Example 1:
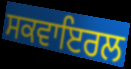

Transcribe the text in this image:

ਸਕਵਾਇਰਲ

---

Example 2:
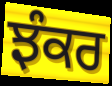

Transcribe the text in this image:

ਝੰਕਰ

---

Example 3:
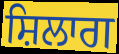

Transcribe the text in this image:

ਸ਼ਿਲਾਗ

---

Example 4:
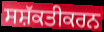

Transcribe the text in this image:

ਸਸ਼ੱਕਤੀਕਰਨ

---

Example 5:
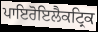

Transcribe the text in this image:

ਪਾਇਰੋਇਲੈਕਟ੍ਰਿਕ